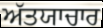
ਅੱਤਯਾਚਾਰ